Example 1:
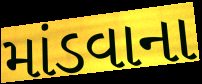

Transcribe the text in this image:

માંડવાના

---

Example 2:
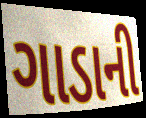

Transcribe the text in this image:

ગાડાની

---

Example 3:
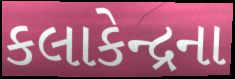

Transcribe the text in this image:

કલાકેન્દ્રના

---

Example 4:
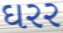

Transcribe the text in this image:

ઘરર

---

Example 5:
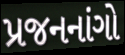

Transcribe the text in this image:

પ્રજનનાંગો